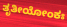
ತೃತೀಯೋಂಕಃ